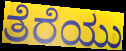
ತೆರೆಯು